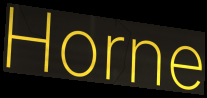
Horne